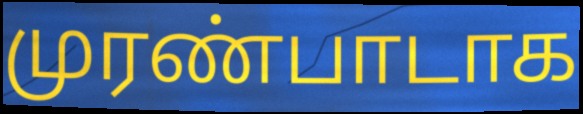
முரண்பாடாக